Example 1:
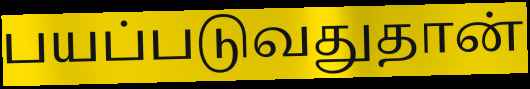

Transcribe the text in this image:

பயப்படுவதுதான்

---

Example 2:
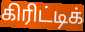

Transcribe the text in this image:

கிரிட்டிக்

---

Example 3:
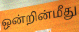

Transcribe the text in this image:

ஒன்றின்மீது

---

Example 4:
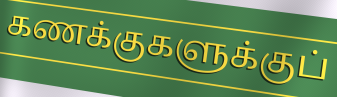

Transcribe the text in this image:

கணக்குகளுக்குப்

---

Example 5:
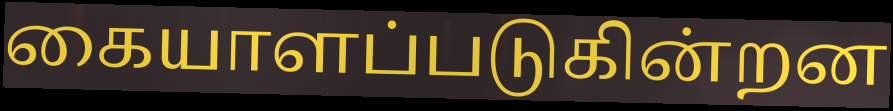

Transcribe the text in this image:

கையாளப்படுகின்றன